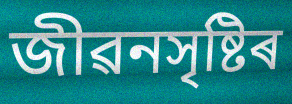
জীৱনসৃষ্টিৰ